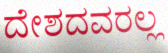
ದೇಶದವರಲ್ಲ